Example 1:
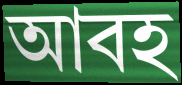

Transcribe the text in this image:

আবহ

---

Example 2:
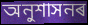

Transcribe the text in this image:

অনুশাসনৰ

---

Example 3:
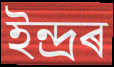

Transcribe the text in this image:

ইন্দ্ৰৰ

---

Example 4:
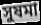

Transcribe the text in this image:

সুষমা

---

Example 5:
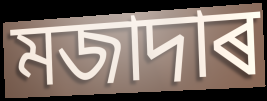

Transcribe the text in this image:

মজাদাৰ